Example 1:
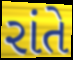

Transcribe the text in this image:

રાંતે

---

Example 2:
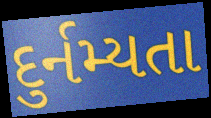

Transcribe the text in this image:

દુર્નમ્યતા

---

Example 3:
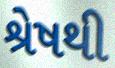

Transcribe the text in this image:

શ્રેષથી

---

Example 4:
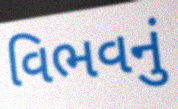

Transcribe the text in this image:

વિભવનું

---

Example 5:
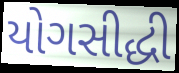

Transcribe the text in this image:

યોગસીદ્ધી